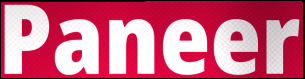
Paneer